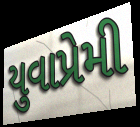
યુવાપ્રેમી